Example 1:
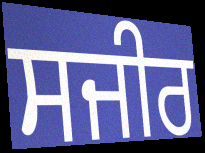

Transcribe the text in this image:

ਸਜੀਰ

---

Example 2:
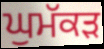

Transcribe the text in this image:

ਘੁਮੱਕੜ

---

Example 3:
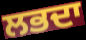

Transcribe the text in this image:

ਲਭਦਾ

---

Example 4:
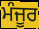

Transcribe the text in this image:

ਮੰਜੂਰ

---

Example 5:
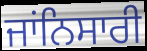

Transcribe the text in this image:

ਜਾਂਨਿਸਾਰੀ